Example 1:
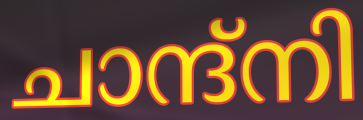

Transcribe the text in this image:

ചാന്ദ്നി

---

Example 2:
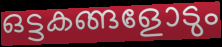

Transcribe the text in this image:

ഒട്ടകങ്ങളോടും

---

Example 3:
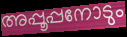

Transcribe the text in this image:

അപ്പൂപ്പനോടും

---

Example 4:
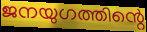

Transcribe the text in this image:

ജനയുഗത്തിന്റെ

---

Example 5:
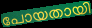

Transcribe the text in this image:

പോയതായി